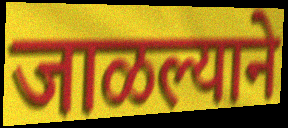
जाळल्याने